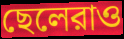
ছেলেরাও